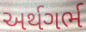
અર્થગર્ભ